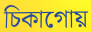
চিকাগোয়